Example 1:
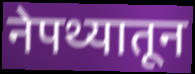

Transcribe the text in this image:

नेपथ्यातून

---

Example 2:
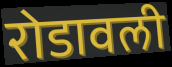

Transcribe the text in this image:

रोडावली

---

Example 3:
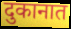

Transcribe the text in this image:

दुकानात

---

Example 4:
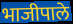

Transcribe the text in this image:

भाजीपाले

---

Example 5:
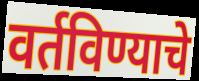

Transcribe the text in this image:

वर्तविण्याचे